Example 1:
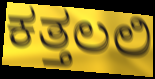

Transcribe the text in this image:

ಕತ್ತಲಲಿ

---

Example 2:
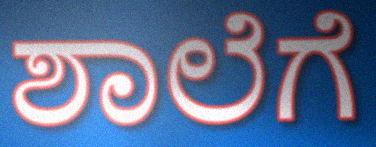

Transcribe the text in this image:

ಶಾಲೆಗೆ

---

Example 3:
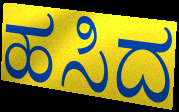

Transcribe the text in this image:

ಹಸಿದ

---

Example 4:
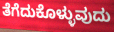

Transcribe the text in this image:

ತೆಗೆದುಕೊಳ್ಳುವುದು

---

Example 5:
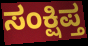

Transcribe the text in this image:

ಸಂಕ್ಷಿಪ್ತ